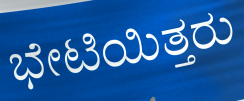
ಭೇಟಿಯಿತ್ತರು